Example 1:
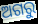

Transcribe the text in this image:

ଅଗରୁ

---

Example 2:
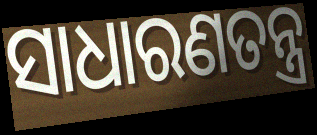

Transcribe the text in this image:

ସାଧାରଣତନ୍ତ୍ର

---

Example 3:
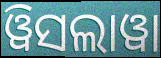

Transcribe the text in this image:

ୱିସଲାୱା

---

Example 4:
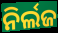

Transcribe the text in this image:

ନିର୍ଲଜ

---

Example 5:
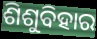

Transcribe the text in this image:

ଶିଶୁବିହାର